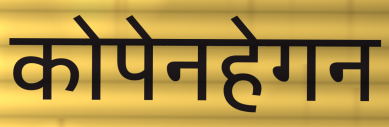
कोपेनहेगन